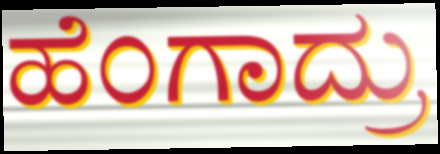
ಹೆಂಗಾದ್ರು